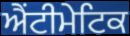
ਐਂਟੀਮੇਟਿਕ